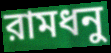
রামধনু